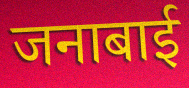
जनाबाई